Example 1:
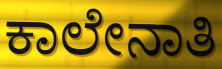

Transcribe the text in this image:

ಕಾಲೇನಾತಿ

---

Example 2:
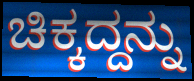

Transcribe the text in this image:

ಚಿಕ್ಕದ್ದನ್ನು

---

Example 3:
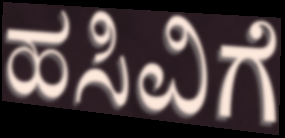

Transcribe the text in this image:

ಹಸಿವಿಗೆ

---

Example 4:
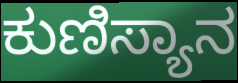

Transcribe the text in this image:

ಕುಣಿಸ್ಯಾನ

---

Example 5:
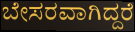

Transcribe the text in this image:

ಬೇಸರವಾಗಿದ್ದರೆ